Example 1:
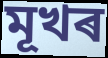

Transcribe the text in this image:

মূখৰ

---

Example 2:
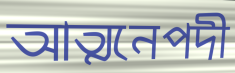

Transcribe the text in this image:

আত্মনেপদী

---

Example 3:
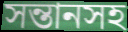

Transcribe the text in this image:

সন্তানসহ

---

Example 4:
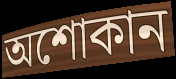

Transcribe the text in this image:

অশোকান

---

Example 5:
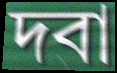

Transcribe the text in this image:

দবা